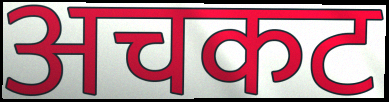
अचकट